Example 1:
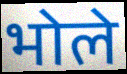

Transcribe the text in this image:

भोले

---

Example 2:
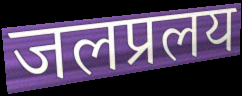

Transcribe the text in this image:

जलप्रलय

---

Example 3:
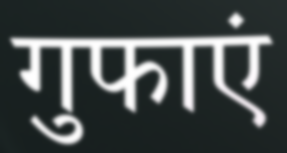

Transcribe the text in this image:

गुफाएं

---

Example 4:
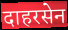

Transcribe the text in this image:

दाहरसेन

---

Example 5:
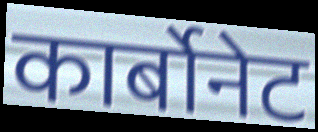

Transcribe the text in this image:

कार्बोनेट